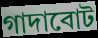
গাদাবোট